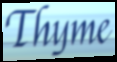
Thyme